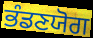
ਭੰਡਣਯੋਗ